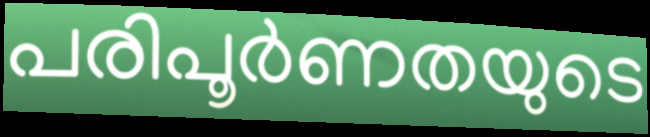
പരിപൂർണതയുടെ